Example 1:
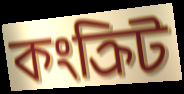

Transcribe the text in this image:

কংক্ৰিট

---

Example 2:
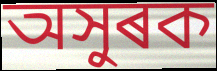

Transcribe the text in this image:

অসুৰক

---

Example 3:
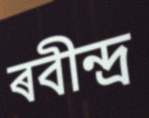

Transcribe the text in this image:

ৰবীন্দ্ৰ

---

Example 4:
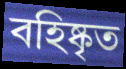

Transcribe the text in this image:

বহিষ্কৃত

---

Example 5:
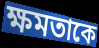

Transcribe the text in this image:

ক্ষমতাকে